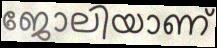
ജോലിയാണ്